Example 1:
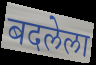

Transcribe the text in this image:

बदलेला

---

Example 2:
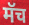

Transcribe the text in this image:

मॅच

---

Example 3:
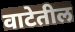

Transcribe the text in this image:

वाटेतील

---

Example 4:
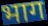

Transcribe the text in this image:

भाग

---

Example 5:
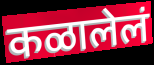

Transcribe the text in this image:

कळालेलं